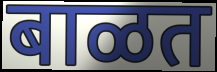
बाळत